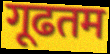
गूढतम